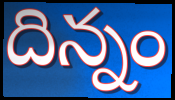
దిన్నం